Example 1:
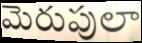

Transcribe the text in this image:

మెరుపులా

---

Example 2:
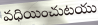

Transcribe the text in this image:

వధియించుటయు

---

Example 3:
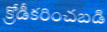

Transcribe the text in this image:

క్రోడీకరించబడి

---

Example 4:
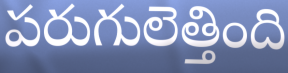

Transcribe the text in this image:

పరుగులెత్తింది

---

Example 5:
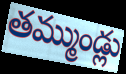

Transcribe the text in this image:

తమ్ముండ్లు